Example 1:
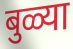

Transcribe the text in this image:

बुळ्या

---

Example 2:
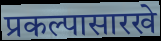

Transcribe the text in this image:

प्रकल्पासारखे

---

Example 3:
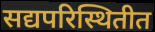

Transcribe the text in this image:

सद्यपरिस्थितीत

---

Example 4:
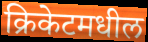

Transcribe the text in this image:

क्रिकेटमधील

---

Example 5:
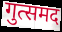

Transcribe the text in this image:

गुत्समद